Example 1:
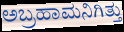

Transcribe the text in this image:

ಅಬ್ರಹಾಮನಿಗಿತ್ತು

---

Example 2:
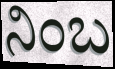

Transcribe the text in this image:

ನಿಂಬ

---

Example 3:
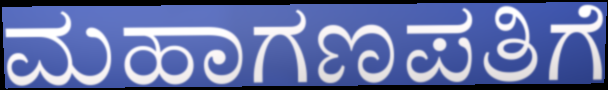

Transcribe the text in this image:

ಮಹಾಗಣಪತಿಗೆ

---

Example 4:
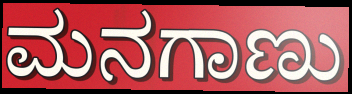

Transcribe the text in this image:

ಮನಗಾಣು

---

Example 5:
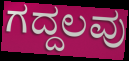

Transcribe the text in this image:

ಗದ್ದಲವು